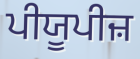
ਪੀਯੂਪੀਜ਼